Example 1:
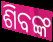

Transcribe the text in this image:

ଶିବଙ୍କ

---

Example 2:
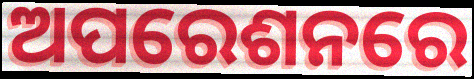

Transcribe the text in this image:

ଅପରେଶନରେ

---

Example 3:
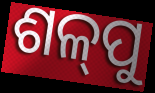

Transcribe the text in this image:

ଶଳ୍‍ପୁ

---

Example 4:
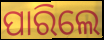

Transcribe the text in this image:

ପାରିଲେ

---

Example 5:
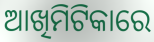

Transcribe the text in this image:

ଆଖିମିଟିକାରେ